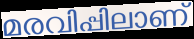
മരവിപ്പിലാണ്